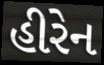
હીરેન